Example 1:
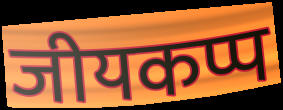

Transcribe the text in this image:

जीयकप्प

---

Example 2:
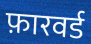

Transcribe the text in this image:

फ़ारवर्ड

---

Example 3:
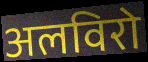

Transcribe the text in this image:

अलविरो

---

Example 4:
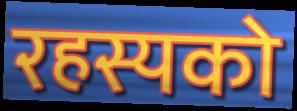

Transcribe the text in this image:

रहस्यको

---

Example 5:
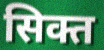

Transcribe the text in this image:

सिक्त